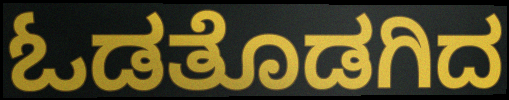
ಓಡತೊಡಗಿದ